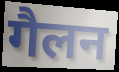
गैलन